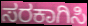
ಸರಕಾಗಿಸಿ